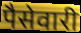
पैसेवारी